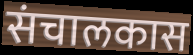
संचालकास